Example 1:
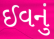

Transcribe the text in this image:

ઈવનું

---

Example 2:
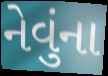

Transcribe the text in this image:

નેવુંના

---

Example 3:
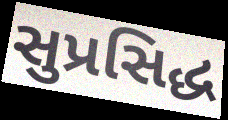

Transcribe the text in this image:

સુપ્રસિદ્ધ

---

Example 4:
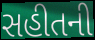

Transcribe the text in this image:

સહીતની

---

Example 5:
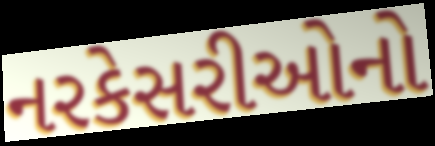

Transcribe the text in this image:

નરકેસરીઓનો